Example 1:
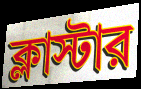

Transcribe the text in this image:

ক্লাস্টার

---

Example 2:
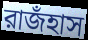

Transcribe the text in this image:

রাজঁহাস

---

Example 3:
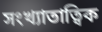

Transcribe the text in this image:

সংখ্যাতাত্বিক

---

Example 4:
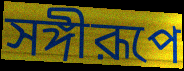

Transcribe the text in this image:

সঙ্গীরূপে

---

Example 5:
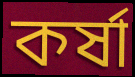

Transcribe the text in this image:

কর্ষা